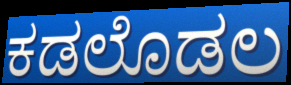
ಕಡಲೊಡಲ